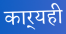
कार्यही